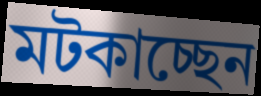
মটকাচ্ছেন